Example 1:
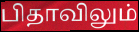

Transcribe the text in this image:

பிதாவிலும்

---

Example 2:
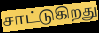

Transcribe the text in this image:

சாட்டுகிறது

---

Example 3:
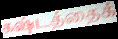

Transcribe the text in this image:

கஷ்டத்தைக்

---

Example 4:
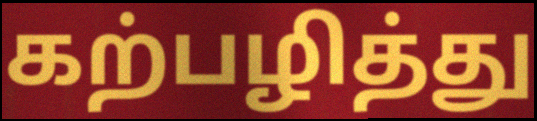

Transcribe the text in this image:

கற்பழித்து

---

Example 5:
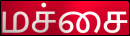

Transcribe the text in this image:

மச்சை